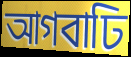
আগবাঢি